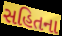
સહિતના